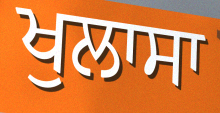
ਖੁਲਾਸਾ